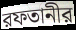
রফতানীর